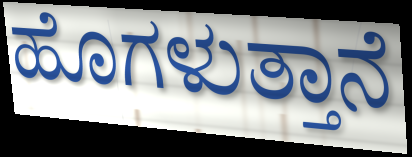
ಹೊಗಳುತ್ತಾನೆ